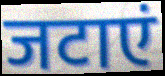
जटाएं